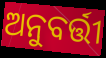
ଅନୁବର୍ତ୍ତୀ